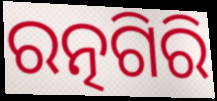
ରତ୍ନଗିରି